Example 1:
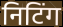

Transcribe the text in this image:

निटिंग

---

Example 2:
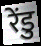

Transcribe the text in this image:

रेंडु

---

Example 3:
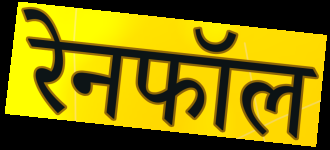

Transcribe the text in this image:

रेनफॉल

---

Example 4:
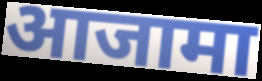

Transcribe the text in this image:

आजामा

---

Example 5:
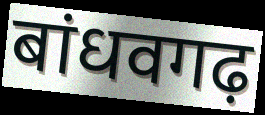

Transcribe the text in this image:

बांधवगढ़